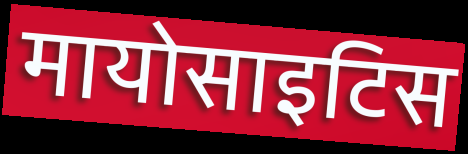
मायोसाइटिस